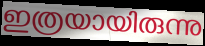
ഇത്രയായിരുന്നു